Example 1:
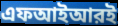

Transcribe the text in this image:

এফআইআরই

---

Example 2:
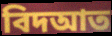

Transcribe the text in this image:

বিদআত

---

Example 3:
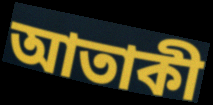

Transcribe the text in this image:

আতাকী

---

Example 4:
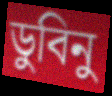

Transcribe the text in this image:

ডুবিনু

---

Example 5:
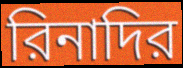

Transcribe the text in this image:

রিনাদির